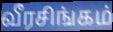
வீரசிங்கம்